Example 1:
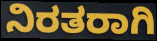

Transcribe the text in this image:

ನಿರತರಾಗಿ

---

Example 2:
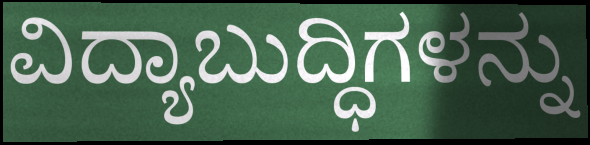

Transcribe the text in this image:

ವಿದ್ಯಾಬುದ್ಧಿಗಳನ್ನು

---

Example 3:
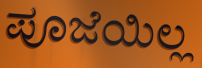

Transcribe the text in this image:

ಪೂಜೆಯಿಲ್ಲ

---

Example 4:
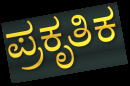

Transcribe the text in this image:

ಪ್ರಕೃತಿಕ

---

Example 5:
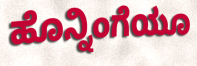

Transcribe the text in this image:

ಹೊನ್ನಿಂಗೆಯೂ